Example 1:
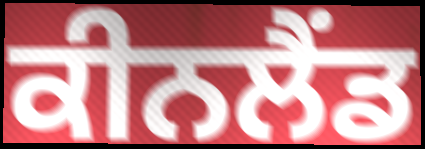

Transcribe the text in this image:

ਕੀਨਲੈਂਡ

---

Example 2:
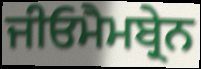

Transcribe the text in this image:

ਜੀਓਮੈਮਬ੍ਰੇਨ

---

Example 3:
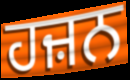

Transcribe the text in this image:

ਹਜ਼ਨ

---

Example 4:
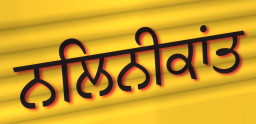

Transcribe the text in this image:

ਨਲਿਨੀਕਾਂਤ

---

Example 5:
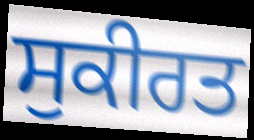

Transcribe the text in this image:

ਸੁਕੀਰਤ